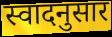
स्वादनुसार